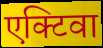
एक्टिवा